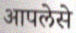
आपलेसे